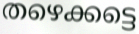
തഴെക്കട്ടെ